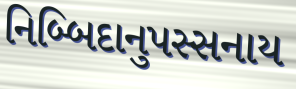
નિબ્બિદાનુપસ્સનાય